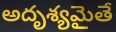
అదృశ్యమైతే